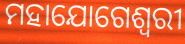
ମହାଯୋଗେଶ୍ୱରୀ